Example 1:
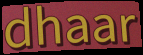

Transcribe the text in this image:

dhaar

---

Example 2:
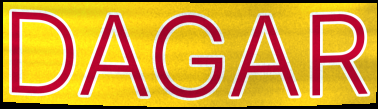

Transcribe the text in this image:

DAGAR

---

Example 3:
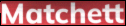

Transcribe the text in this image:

Matchett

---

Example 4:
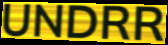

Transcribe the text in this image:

UNDRR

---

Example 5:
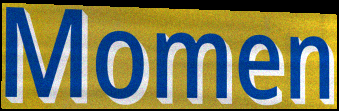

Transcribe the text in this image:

Momen